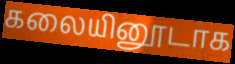
கலையினூடாக